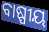
ବାଷ୍ପୀୟ